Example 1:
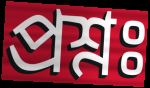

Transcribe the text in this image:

প্রশ্নঃ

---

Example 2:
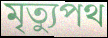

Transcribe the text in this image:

মৃত্যুপথ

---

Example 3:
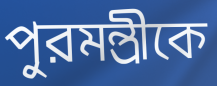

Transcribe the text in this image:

পুরমন্ত্রীকে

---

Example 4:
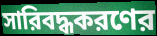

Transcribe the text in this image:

সারিবদ্ধকরণের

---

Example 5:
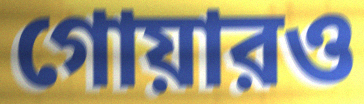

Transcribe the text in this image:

গোয়ারও